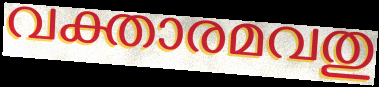
വക്താരമവതു